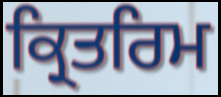
ਕ੍ਰਿਤਰਿਮ